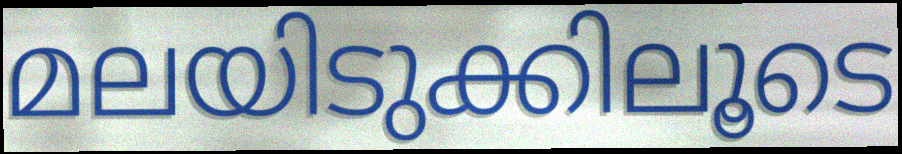
മലയിടുക്കിലൂടെ